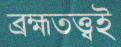
ব্রহ্মতত্ত্বই